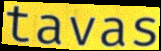
tavas